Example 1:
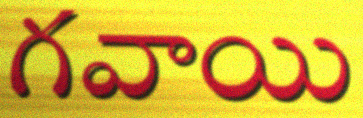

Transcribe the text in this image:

గవాయి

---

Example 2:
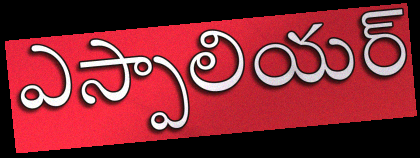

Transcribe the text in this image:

ఎస్పాలియర్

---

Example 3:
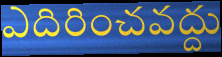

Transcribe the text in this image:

ఎదిరించవద్దు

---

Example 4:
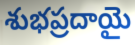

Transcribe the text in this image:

శుభప్రదాయై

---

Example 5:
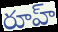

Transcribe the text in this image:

రూహ్